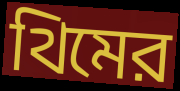
থিমের